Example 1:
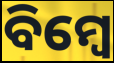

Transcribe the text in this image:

ବିମ୍ବେ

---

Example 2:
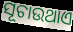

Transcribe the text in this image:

ସୂଚାଉଥାଏ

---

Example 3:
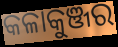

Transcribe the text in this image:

କଳାକୁଞ୍ଜର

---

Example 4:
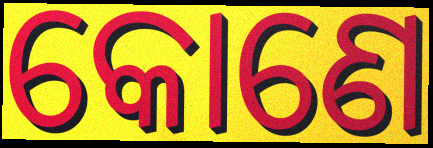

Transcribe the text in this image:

କୋଣେ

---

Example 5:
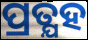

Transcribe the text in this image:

ପ୍ରତ୍ଯହ